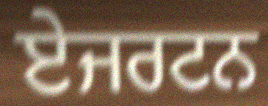
ਏਜਰਟਨ